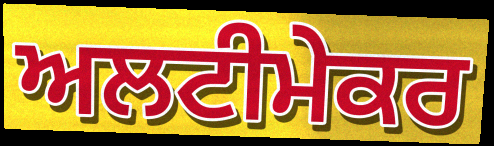
ਅਲਟੀਮੇਕਰ